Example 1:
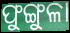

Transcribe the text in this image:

ଫୁଙ୍ଗୁଳା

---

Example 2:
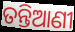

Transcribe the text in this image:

ତନ୍ତିଆଣୀ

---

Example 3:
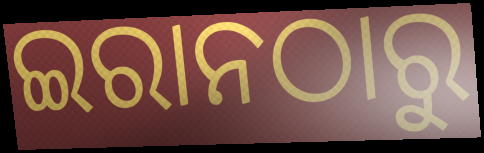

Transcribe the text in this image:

ଇରାନଠାରୁ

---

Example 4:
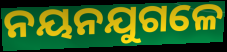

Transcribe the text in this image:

ନୟନଯୁଗଳେ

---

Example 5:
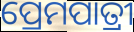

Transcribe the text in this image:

ପ୍ରେମପାତ୍ରୀ